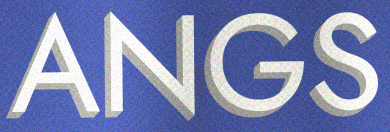
ANGS